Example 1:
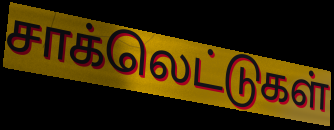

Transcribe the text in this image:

சாக்லெட்டுகள்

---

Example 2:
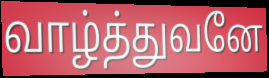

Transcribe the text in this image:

வாழ்த்துவனே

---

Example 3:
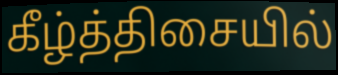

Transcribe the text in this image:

கீழ்த்திசையில்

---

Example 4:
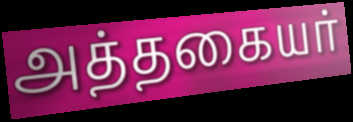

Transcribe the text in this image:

அத்தகையர்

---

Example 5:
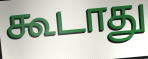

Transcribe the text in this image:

கூடாது